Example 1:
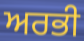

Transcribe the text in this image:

ਅਰਭੀ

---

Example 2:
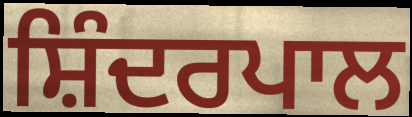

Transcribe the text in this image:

ਸ਼ਿੰਦਰਪਾਲ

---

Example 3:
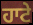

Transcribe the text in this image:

ਹਾਟੇ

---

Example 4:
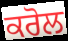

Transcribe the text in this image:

ਕਰੋਲ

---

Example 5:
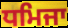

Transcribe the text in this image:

ਧਮਿਜਾ